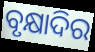
ବୃକ୍ଷାଦିର